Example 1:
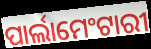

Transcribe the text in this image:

ପାର୍ଲାମେଂଟାରୀ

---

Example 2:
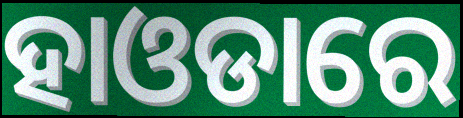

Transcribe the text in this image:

ହାଓଡାରେ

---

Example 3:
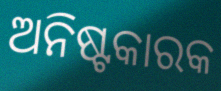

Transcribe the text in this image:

ଅନିଷ୍ଟକାରକ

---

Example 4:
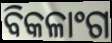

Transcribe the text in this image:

ବିକଳାଂଗ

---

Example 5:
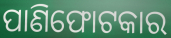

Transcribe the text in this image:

ପାଣିଫୋଟକାର